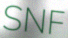
SNF